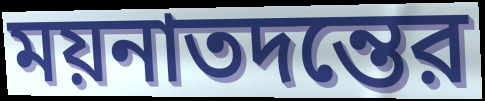
ময়নাতদন্তের